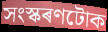
সংস্কৰণটোক